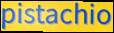
pistachio